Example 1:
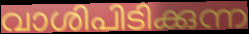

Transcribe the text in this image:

വാശിപിടിക്കുന്ന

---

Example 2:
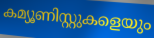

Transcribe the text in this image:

കമ്യൂണിസ്റ്റുകളെയും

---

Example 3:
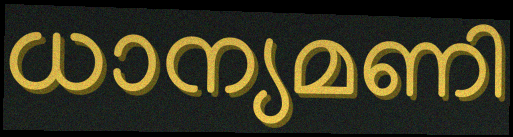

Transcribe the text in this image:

ധാന്യമണി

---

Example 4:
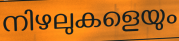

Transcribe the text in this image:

നിഴലുകളെയും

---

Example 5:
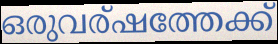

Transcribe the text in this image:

ഒരുവര്ഷത്തേക്ക്